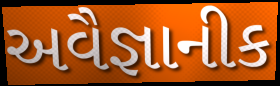
અવૈજ્ઞાનીક